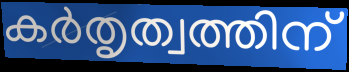
കർതൃത്വത്തിന്